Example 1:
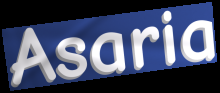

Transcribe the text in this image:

Asaria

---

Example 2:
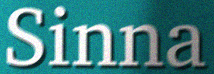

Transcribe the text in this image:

Sinna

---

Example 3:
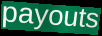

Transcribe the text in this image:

payouts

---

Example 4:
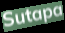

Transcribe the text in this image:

Sutapa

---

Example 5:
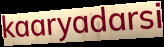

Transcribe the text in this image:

kaaryadarsi